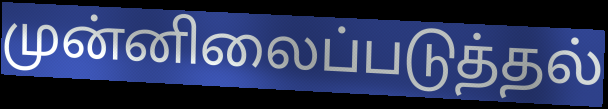
முன்னிலைப்படுத்தல்